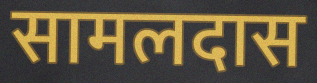
सामलदास